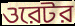
ওরেটর